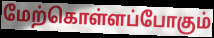
மேற்கொள்ளப்போகும்